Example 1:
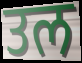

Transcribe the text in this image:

उल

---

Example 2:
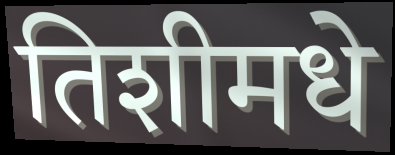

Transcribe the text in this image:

तिशीमधे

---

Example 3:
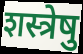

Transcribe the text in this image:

शस्त्रेषु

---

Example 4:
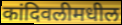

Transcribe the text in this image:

कांदिवलीमधील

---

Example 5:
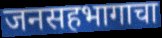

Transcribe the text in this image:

जनसहभागाचा